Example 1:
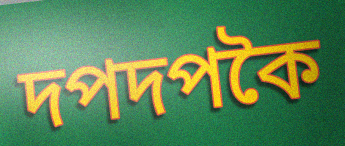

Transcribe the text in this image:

দপদপকৈ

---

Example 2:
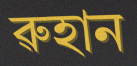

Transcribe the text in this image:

ৱুহান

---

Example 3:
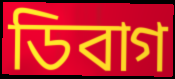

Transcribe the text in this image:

ডিবাগ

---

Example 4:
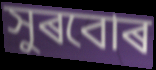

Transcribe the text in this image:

সুৰবোৰ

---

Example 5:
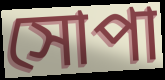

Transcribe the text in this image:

সোপা